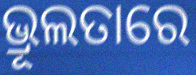
ଭ୍ରୂଲତାରେ